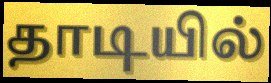
தாடியில்